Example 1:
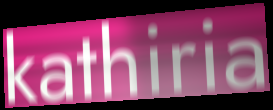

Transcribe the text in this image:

kathiria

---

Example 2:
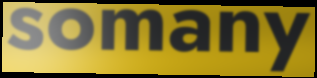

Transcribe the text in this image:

somany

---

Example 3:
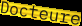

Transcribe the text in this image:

Docteure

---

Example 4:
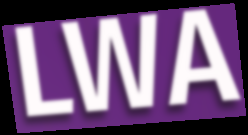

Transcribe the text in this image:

LWA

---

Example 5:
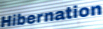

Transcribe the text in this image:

Hibernation